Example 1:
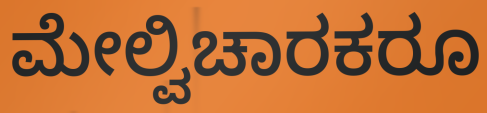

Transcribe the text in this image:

ಮೇಲ್ವಿಚಾರಕರೂ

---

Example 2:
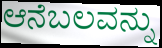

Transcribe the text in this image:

ಆನೆಬಲವನ್ನು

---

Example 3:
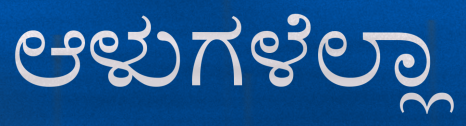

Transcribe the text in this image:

ಆಳುಗಳೆಲ್ಲಾ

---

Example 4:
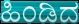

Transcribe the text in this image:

ಹಿಂಡಿದ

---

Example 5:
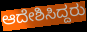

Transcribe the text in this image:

ಆದೇಶಿಸಿದ್ದರು